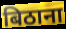
बिठाना